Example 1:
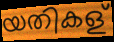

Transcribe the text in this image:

യതികള്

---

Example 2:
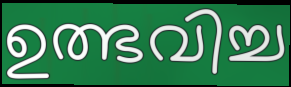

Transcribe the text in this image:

ഉത്ഭവിച്ച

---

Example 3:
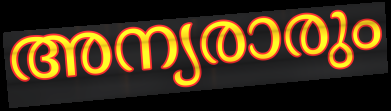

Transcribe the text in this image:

അന്യരാരും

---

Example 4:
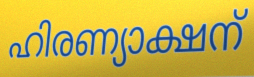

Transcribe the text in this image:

ഹിരണ്യാക്ഷന്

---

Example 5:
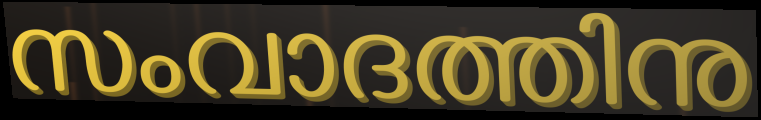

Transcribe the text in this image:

സംവാദത്തിനു